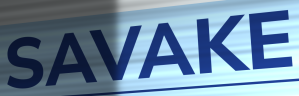
SAVAKE